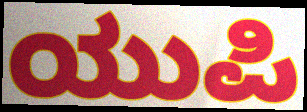
ಯುಪಿ